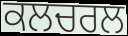
ਕਲਚਰਲ